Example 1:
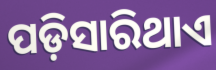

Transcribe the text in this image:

ପଡ଼ିସାରିଥାଏ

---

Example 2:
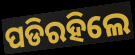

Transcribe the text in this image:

ପଡିରହିଲେ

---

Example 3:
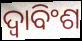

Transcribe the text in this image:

ଦ୍ଵାବିଂଶ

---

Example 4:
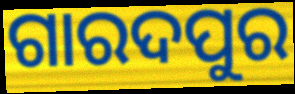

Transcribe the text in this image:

ଗାରଦପୁର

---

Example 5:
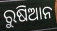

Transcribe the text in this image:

ରୁଷିଆନ